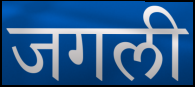
जगली